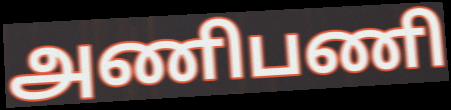
அணிபணி